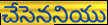
చేసెననియు